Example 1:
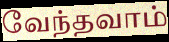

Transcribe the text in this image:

வேந்தவாம்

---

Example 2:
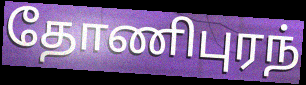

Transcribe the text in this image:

தோணிபுரந்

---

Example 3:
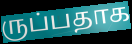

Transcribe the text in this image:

ருப்பதாக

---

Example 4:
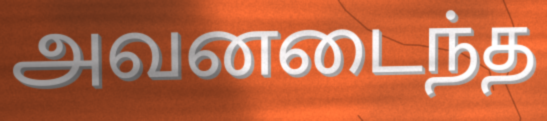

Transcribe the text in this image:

அவனடைந்த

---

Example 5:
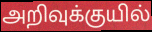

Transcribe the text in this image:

அறிவுக்குயில்